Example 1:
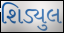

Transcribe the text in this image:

શિડ્યુલ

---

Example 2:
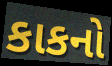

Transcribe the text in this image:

કાકનો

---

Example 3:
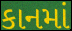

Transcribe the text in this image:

કાનમાં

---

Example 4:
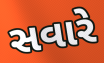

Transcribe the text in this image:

સવારે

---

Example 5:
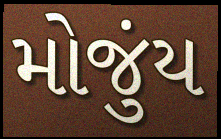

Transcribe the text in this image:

મોજુંય